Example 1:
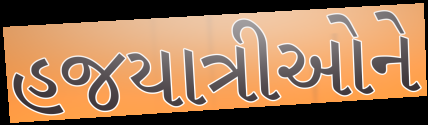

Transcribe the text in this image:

હજયાત્રીઓને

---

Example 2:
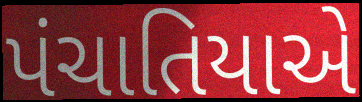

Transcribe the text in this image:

પંચાતિયાએ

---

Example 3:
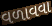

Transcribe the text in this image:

વળાવવા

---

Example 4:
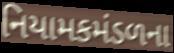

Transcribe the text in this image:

નિયામકમંડળના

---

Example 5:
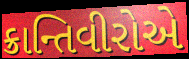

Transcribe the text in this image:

ક્રાન્તિવીરોએ